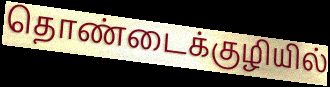
தொண்டைக்குழியில்